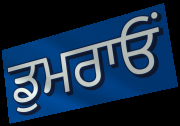
ਡੁਮਰਾਓਂ